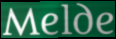
Melde